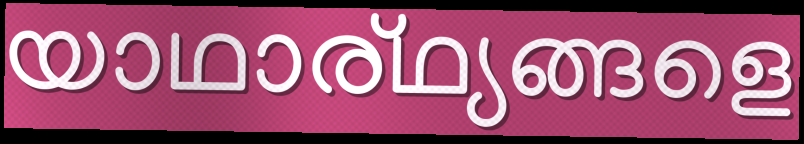
യാഥാര്ഥ്യങ്ങളെ